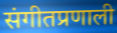
संगीतप्रणाली